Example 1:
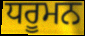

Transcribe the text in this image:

ਧਰੂਮਨ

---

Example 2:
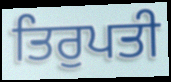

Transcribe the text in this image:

ਤਿਰੁਪਤੀ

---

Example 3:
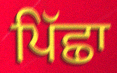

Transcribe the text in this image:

ਪਿੱਛਾ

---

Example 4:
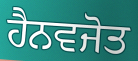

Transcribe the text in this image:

ਹੈਨਵਜੋਤ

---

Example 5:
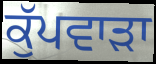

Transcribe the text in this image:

ਕੁੱਪਵਾੜਾ